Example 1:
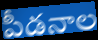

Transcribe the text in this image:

పీడనాల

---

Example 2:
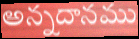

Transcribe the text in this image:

అన్నదానము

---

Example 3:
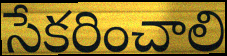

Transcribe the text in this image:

సేకరించాలి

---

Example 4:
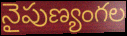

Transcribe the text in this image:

నైపుణ్యంగల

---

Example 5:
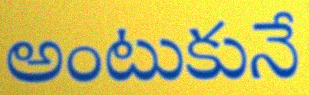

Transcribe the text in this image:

అంటుకునే